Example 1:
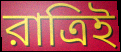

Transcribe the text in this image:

রাত্রিই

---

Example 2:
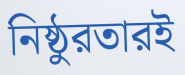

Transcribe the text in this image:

নিষ্ঠুরতারই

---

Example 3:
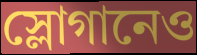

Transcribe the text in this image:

স্লোগানেও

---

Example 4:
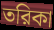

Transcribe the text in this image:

তরিকা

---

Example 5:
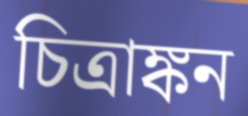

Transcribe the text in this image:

চিত্রাঙ্কন